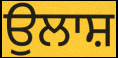
ਉਲਾਸ਼